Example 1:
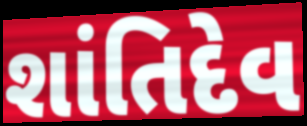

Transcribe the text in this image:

શાંતિદેવ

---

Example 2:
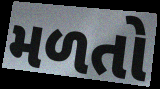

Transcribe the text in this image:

મળતો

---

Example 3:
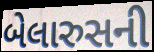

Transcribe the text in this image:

બેલારુસની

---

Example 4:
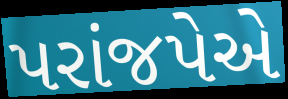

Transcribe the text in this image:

પરાંજપેએ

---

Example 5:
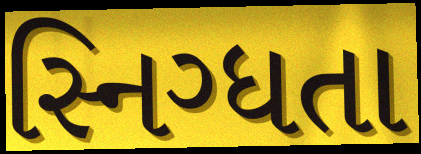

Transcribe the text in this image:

સ્નિગ્ધતા